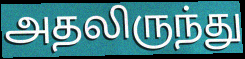
அதலிருந்து